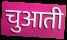
चुआती